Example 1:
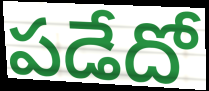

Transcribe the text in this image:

పడేదో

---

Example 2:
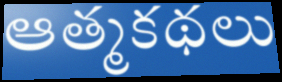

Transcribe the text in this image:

ఆత్మకథలు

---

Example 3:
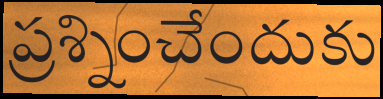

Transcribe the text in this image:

ప్రశ్నించేందుకు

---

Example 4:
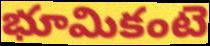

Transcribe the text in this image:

భూమికంటె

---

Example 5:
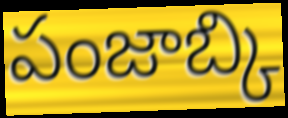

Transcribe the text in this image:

పంజాబ్కి